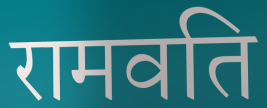
रामवति